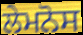
ਲੇਮਨੋਸ